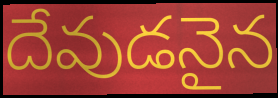
దేవుడనైన